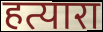
हत्यारा